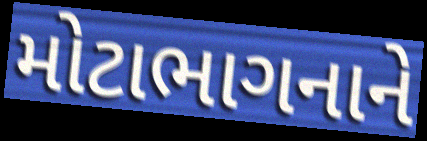
મોટાભાગનાને